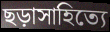
ছড়াসাহিত্যে